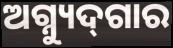
ଅଗ୍ନ୍ୟୁଦ୍‌ଗାର